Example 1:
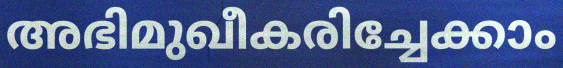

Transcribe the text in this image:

അഭിമുഖീകരിച്ചേക്കാം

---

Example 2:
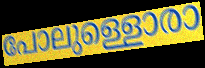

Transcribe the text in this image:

പോലുള്ളൊരാ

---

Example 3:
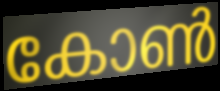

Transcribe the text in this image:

കോൺ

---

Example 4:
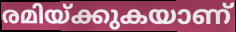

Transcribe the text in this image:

രമിയ്ക്കുകയാണ്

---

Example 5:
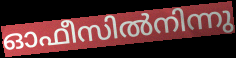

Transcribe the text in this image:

ഓഫീസിൽനിന്നു